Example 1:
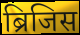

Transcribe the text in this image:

ब्रिजिस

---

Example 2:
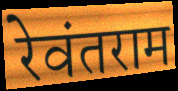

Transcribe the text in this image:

रेवंतराम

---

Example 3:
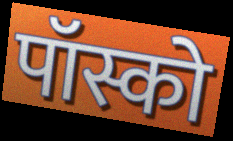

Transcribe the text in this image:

पॉस्को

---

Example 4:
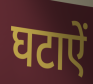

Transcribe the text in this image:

घटाऐं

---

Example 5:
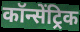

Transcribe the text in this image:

कॉन्सेंट्रिक